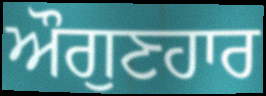
ਔਗੁਣਹਾਰ